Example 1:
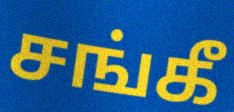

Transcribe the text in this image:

சங்கீ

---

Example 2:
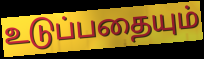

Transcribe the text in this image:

உடுப்பதையும்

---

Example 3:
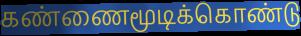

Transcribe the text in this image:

கண்ணைமூடிக்கொண்டு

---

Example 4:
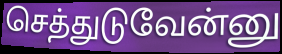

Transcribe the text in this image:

செத்துடுவேன்னு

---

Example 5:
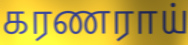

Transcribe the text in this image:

கரணராய்